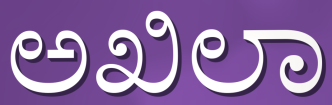
ಅಖಿಲಾ